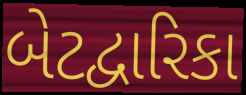
બેટદ્વારિકા